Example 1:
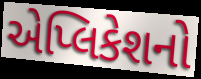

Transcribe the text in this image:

એપ્લિકેશનો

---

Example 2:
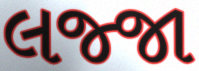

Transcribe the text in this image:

લજ્જા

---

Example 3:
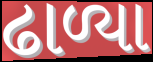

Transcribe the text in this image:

ઢાળ્યા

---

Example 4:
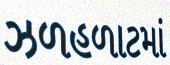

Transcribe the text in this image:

ઝળહળાટમાં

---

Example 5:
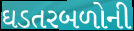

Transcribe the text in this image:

ઘડતરબળોની